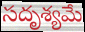
సదృశ్యమే